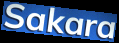
Sakara